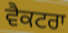
ਵੈਕਟਰਾ